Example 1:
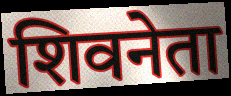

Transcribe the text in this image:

शिवनेता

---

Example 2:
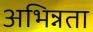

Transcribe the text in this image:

अभिन्नता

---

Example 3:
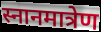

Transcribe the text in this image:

स्नानमात्रेण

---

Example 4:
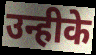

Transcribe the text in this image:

उन्हीके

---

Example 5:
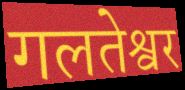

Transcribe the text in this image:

गलतेश्वर